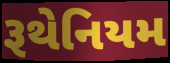
રૂથેનિયમ